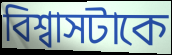
বিশ্বাসটাকে